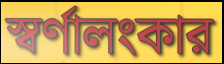
স্বর্ণালংকার